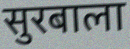
सुरबाला